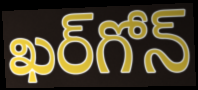
ఖర్‌గోన్